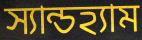
স্যান্ডহ্যাম